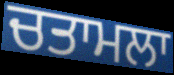
ਚਤਾਮਲਾ